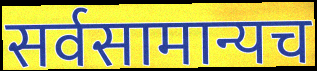
सर्वसामान्यच